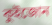
কুইজোন